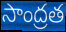
సాంద్రత